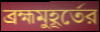
ব্রহ্মমুহূর্তের